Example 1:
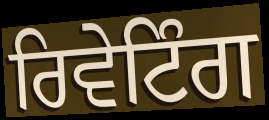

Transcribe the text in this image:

ਰਿਵੇਟਿੰਗ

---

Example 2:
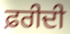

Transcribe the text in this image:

ਫ਼ਰੀਦੀ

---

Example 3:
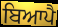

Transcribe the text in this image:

ਬਿਆਪੈ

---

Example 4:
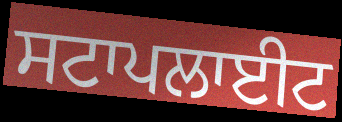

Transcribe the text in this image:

ਸਟਾਪਲਾਈਟ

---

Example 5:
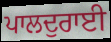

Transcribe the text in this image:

ਪਾਲਦੁਰਾਈ